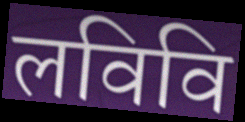
लविवि